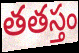
తతస్తం